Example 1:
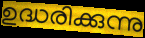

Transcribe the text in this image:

ഉദ്ധരിക്കുന്നു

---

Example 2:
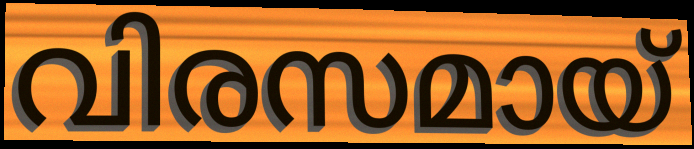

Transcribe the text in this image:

വിരസമായ്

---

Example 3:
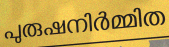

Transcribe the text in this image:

പുരുഷനിർമ്മിത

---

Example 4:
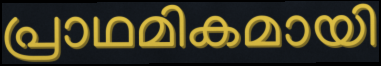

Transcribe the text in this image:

പ്രാഥമികമായി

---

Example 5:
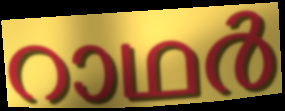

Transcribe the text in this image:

റാഥർ